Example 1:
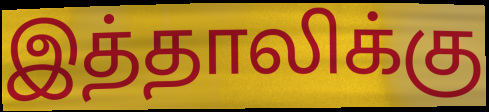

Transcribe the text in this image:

இத்தாலிக்கு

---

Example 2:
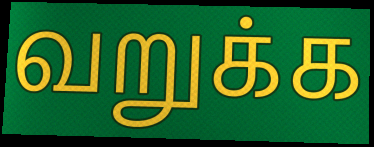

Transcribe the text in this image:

வறுக்க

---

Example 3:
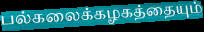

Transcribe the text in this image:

பல்கலைக்கழகத்தையும்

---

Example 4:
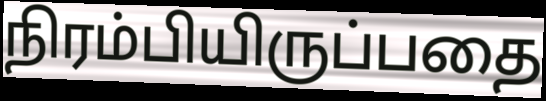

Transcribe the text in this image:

நிரம்பியிருப்பதை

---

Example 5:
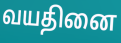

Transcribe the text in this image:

வயதினை